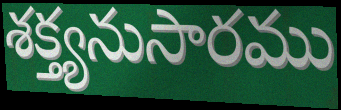
శక్త్యనుసారము